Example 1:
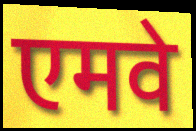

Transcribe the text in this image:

एमवे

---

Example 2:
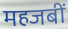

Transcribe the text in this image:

महजबीं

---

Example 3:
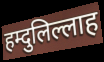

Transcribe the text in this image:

हम्दुलिल्लाह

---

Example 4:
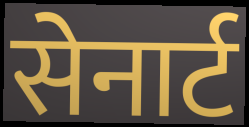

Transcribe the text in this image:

सेनार्ट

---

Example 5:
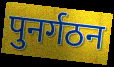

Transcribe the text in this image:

पुनर्गठन